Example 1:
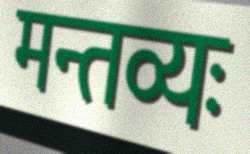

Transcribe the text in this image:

मन्तव्यः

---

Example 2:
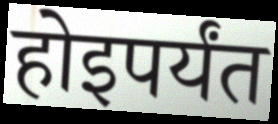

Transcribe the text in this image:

होइपर्यंत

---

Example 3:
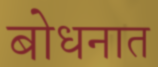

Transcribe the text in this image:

बोधनात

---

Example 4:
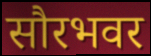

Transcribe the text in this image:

सौरभवर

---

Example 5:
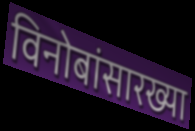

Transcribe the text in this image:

विनोबांसारख्या